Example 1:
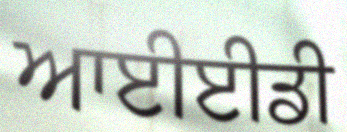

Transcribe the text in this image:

ਆਈਈਡੀ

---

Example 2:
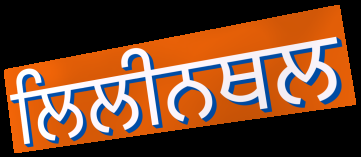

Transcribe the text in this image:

ਲਿਲੀਨਥਲ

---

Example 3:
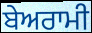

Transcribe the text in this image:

ਬੇਅਰਾਮੀ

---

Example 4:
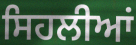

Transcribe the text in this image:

ਸਿਹਲੀਆਂ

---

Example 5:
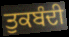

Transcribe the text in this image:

ਤੁਕਬੰਦੀ